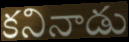
కనినాడు